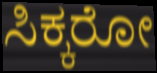
ಸಿಕ್ಕರೋ